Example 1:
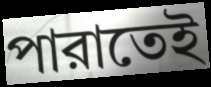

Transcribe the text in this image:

পারাতেই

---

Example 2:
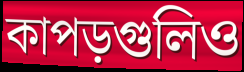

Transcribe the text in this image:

কাপড়গুলিও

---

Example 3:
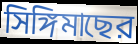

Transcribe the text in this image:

সিঙ্গিমাছের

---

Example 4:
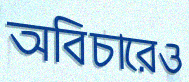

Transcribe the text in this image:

অবিচারেও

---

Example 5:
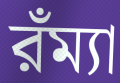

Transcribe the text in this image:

রঁম্যা